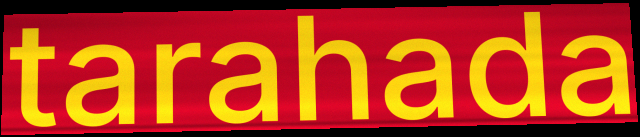
tarahada